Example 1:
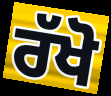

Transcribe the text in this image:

ਰੱਖੋ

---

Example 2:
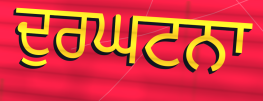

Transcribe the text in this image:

ਦੁਰਘਟਨਾ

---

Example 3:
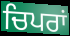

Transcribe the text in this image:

ਚਿਪਰਾਂ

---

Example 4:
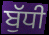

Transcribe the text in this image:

ਬੁੱਧੀ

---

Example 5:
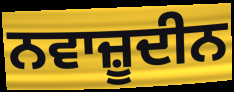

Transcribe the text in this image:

ਨਵਾਜ਼ੂਦੀਨ